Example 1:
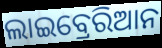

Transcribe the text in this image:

ଲାଇବ୍ରେରିଆନ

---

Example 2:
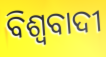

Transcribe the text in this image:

ବିଶ୍ବବାଦୀ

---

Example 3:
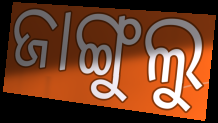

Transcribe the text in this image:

ଜାଙ୍ଗୁଲୁ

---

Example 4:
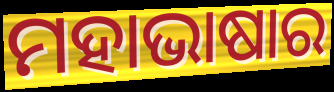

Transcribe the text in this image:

ମହାଭାଷାର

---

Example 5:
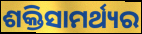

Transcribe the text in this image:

ଶକ୍ତିସାମର୍ଥ୍ୟର